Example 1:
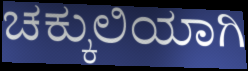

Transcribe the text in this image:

ಚಕ್ಕುಲಿಯಾಗಿ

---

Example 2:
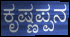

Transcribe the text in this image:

ಕೃಷ್ಣಪ್ಪನ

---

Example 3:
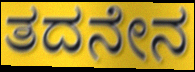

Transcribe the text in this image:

ತದನೇನ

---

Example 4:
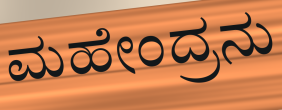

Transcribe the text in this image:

ಮಹೇಂದ್ರನು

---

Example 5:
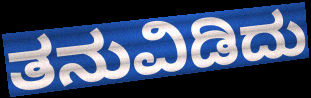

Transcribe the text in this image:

ತನುವಿಡಿದು